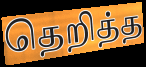
தெறித்த